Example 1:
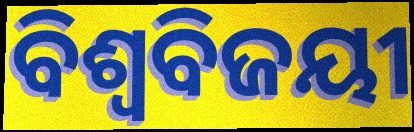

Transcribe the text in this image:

ବିଶ୍ବବିଜୟୀ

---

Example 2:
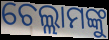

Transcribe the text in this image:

ଚେଲ୍ଲାମଙ୍କୁ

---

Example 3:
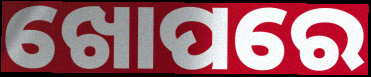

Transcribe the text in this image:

ଖୋପରେ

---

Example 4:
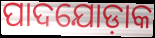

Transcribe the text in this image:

ପାଦଯୋଡ଼ାକ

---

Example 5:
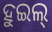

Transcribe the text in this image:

ହୁଇଲ୍